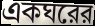
একঘরের